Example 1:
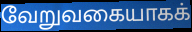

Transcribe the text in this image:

வேறுவகையாகக்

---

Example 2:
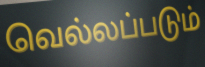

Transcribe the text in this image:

வெல்லப்படும்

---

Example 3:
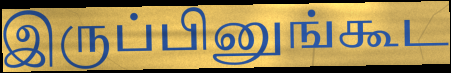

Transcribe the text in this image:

இருப்பினுங்கூட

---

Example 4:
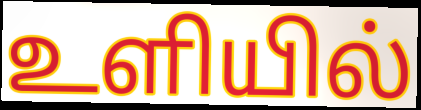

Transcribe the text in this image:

உளியில்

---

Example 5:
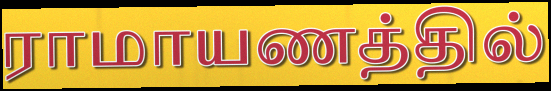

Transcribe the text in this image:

ராமாயணத்தில்